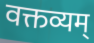
वक्तव्यम्